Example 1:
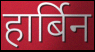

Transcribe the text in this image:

हार्बिन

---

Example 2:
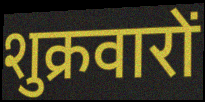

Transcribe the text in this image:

शुक्रवारों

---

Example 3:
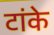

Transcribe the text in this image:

टांके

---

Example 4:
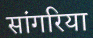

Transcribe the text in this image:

सांगरिया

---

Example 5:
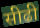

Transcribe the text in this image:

सीढी